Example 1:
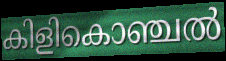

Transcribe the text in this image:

കിളികൊഞ്ചൽ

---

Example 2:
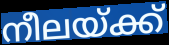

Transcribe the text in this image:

നീലയ്ക്ക്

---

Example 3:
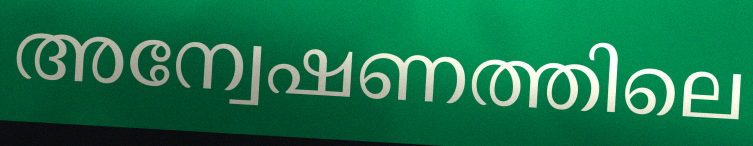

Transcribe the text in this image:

അന്വേഷണത്തിലെ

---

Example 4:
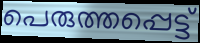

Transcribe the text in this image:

പെരുത്തപ്പെട്ട്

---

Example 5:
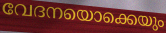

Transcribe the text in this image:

വേദനയൊക്കെയും